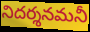
నిదర్శనమనీ